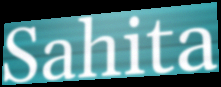
Sahita